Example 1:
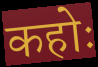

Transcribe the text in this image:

कहोः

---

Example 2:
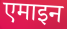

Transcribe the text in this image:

एमाइन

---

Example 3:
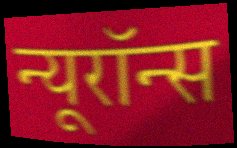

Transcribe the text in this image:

न्यूरॉन्स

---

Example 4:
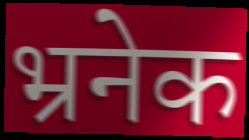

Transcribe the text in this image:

भ्रनेक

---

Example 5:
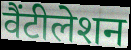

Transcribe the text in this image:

वैंटीलेशन